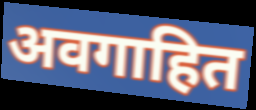
अवगाहित